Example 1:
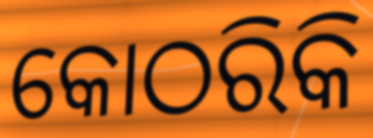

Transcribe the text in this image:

କୋଠରିକି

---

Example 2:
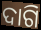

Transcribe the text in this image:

ଦାଗି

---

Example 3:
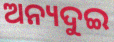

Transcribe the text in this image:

ଅନ୍ୟଦୁଇ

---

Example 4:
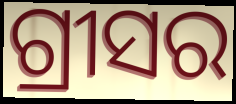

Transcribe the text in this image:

ଗ୍ରୀସର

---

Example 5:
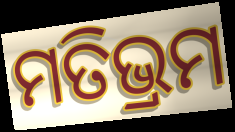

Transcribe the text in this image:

ମତିଭ୍ରମ